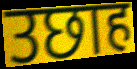
उछाह